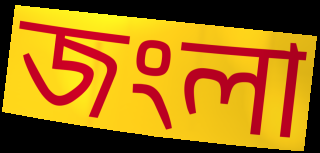
জংলা